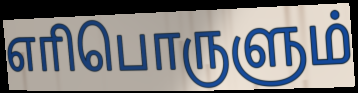
எரிபொருளும்